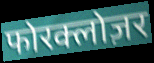
फोरक्लोज़र